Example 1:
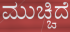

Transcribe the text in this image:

ಮುಚ್ಚಿದೆ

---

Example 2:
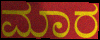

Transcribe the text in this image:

ಮಾರ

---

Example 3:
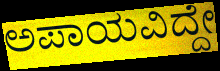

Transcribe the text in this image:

ಅಪಾಯವಿದ್ದೇ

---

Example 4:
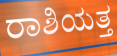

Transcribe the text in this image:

ರಾಶಿಯತ್ತ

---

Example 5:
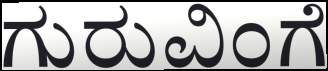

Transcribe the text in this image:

ಗುರುವಿಂಗೆ